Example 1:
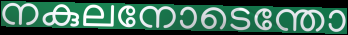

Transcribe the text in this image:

നകുലനോടെന്തോ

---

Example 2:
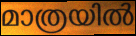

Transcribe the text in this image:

മാത്രയിൽ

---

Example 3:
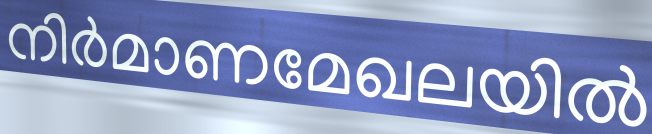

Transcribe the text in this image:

നിർമാണമേഖലയിൽ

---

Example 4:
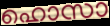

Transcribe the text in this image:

ഹൊസാ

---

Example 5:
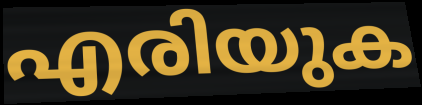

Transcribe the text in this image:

എരിയുക